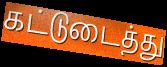
கட்டுடைத்து